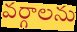
వర్గాలను